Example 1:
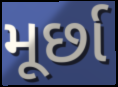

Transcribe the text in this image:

મૂર્છા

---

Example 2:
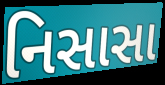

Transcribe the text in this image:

નિસાસા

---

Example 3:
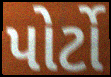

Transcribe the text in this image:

પોર્ટો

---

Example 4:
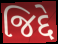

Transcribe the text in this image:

જિદ્દે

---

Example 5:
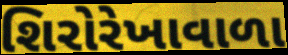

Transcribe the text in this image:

શિરોરેખાવાળા